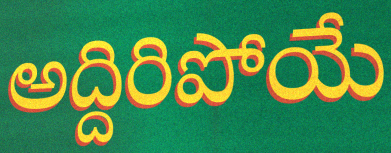
అద్దిరిపోయే